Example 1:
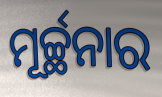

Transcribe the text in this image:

ମୂର୍ଚ୍ଛନାର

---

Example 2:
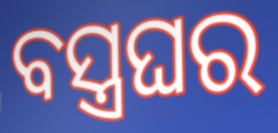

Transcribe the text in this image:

ବସ୍ତ୍ରଘର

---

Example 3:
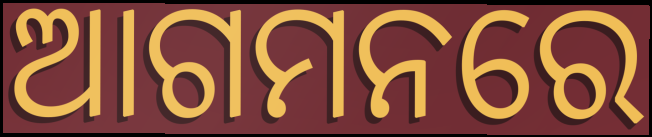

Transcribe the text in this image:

ଆଗମନରେ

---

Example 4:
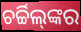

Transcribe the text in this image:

ଚର୍ଚ୍ଚିଲ୍‌ଙ୍କର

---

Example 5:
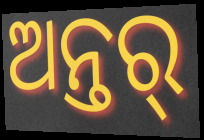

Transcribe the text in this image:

ଅନ୍ତର୍